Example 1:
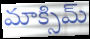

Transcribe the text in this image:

మాక్సిమ్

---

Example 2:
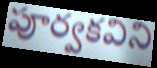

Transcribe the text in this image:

పూర్వకవిని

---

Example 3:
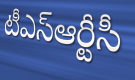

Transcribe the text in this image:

టీఎస్ఆర్టీసీ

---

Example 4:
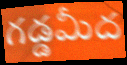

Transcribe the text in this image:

గడ్డమీద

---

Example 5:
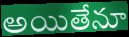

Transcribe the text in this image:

అయితేనూ